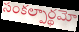
సంకల్పార్థమో